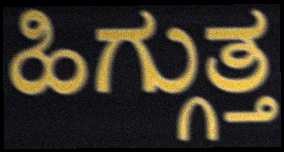
ಹಿಗ್ಗುತ್ತ